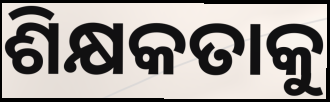
ଶିକ୍ଷକତାକୁ